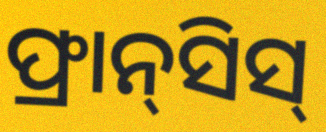
ଫ୍ରାନ୍‌ସିସ୍